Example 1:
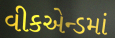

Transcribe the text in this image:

વીકએન્ડમાં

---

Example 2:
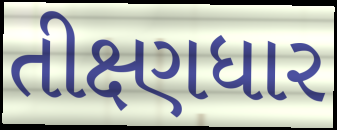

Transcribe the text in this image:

તીક્ષ્ણધાર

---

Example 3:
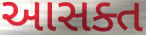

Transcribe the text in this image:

આસક્ત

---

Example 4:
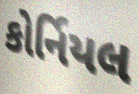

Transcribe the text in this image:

કોર્નિયલ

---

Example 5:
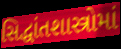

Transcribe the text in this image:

સિદ્ધાંતશાસ્ત્રોમાં